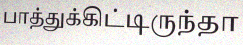
பாத்துக்கிட்டிருந்தா